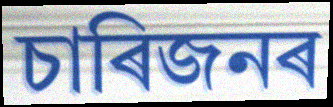
চাৰিজনৰ